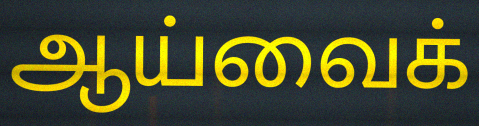
ஆய்வைக்